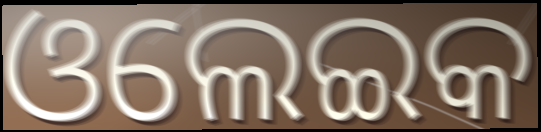
ଓଲେଇକ